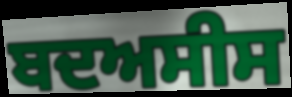
ਬਦਅਸੀਸ